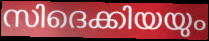
സിദെക്കിയയും